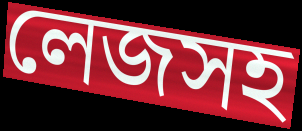
লেজসহ